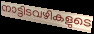
നാട്ടിടവഴികളുടെ